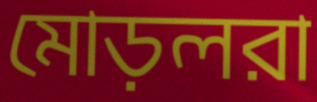
মোড়লরা